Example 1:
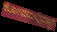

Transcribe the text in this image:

ಕೋಪದಲ್ಲಿದ್ದಾಗ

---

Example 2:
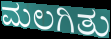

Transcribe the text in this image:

ಮಲಗಿತು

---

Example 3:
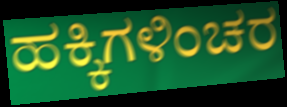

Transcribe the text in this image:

ಹಕ್ಕಿಗಳಿಂಚರ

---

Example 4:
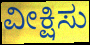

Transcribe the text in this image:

ವೀಕ್ಷಿಸು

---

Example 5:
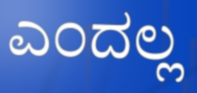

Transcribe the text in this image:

ಎಂದಲ್ಲ